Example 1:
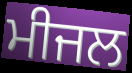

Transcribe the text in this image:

ਮੀਜਲ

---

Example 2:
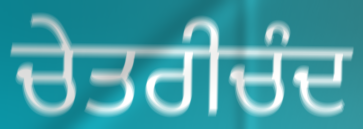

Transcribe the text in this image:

ਚੇਤਰੀਚੰਦ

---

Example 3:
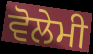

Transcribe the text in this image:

ਵੋਲੇਮੀ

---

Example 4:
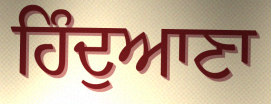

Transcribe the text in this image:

ਹਿੰਦੁਆਣਾ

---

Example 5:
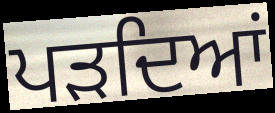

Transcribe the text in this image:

ਪੜਦਿਆਂ